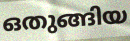
ഒതുങ്ങിയ